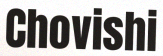
Chovishi